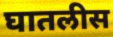
घातलीस